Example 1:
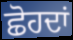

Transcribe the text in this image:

ਛੋਹਦਾਂ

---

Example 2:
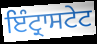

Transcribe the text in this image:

ਇੰਟ੍ਰਾਸਟੇਟ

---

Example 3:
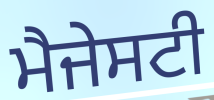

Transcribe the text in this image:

ਮੈਜੇਸਟੀ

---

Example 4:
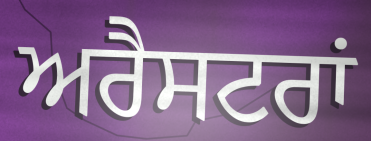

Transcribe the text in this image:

ਅਰੈਸਟਰਾਂ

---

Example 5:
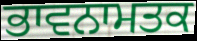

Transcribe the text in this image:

ਭਾਵਨਾਮਤਕ